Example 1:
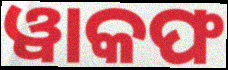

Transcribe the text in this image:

ୱାକଫ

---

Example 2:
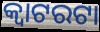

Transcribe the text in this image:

କ୍ଵାଟରଟା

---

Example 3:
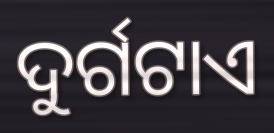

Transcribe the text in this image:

ଦୁର୍ଗଟାଏ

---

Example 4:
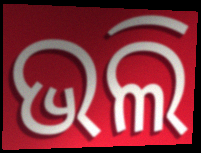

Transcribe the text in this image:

ଭଲି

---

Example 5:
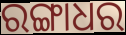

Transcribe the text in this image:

ରଙ୍ଗାଧର